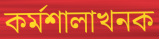
কৰ্মশালাখনক